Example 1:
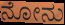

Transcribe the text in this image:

ನೋನು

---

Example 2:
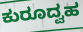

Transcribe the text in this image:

ಕುರೂದ್ವಹ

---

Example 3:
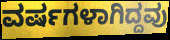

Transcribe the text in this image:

ವರ್ಷಗಳಾಗಿದ್ದವು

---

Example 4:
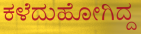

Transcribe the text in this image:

ಕಳೆದುಹೋಗಿದ್ದ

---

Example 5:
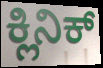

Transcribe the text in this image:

ಕ್ಲಿನಿಕ್